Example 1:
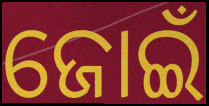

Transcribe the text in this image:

ଜୋଇଁ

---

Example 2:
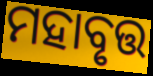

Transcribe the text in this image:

ମହାବୃତ୍ତ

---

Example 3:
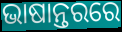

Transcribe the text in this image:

ଭାଷାନ୍ତରରେ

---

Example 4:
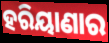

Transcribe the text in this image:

ହରିୟାଣାର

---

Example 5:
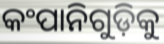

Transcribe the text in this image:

କଂପାନିଗୁଡ଼ିକୁ